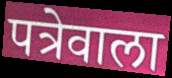
पत्रेवाला